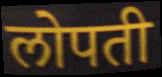
लोपती